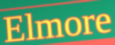
Elmore